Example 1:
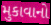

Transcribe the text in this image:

મુકાવાનો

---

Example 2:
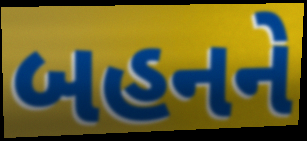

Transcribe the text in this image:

બહનને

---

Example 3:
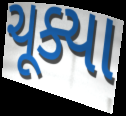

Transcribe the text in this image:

ચૂક્યા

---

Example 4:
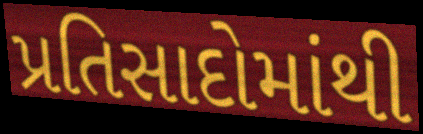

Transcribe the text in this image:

પ્રતિસાદોમાંથી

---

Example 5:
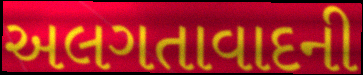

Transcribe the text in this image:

અલગતાવાદની